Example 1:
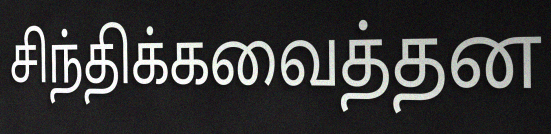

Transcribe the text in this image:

சிந்திக்கவைத்தன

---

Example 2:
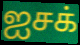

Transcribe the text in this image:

ஐசக்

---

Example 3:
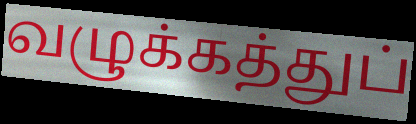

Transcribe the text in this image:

வழுக்கத்துப்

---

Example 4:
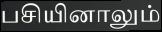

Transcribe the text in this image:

பசியினாலும்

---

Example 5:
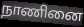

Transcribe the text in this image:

நாணினை